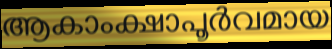
ആകാംക്ഷാപൂർവമായ